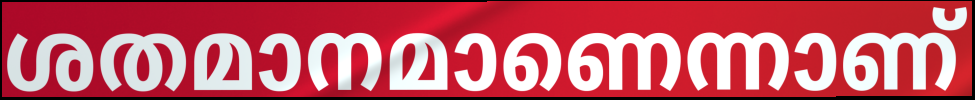
ശതമാനമാണെന്നാണ്